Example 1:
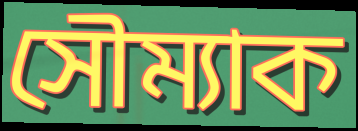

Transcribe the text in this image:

সৌম্যাক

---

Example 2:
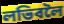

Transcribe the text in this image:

লভিবলৈ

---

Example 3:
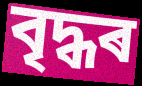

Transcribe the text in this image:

বৃদ্ধৰ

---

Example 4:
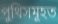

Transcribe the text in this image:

পুথিসমূহত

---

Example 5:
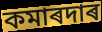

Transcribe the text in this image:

কমাৰদাৰ